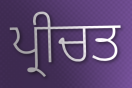
ਪ੍ਰੀਚਤ